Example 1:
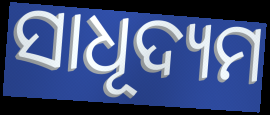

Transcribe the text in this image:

ସାଧୂଦ୍ୟମ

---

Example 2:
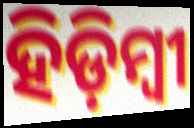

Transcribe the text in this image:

ହିଡ଼ିମ୍ବୀ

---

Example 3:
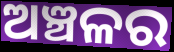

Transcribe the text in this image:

ଅଞ୍ଚଳର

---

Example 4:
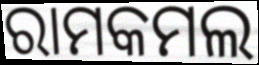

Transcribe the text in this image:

ରାମକମଲ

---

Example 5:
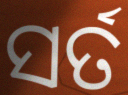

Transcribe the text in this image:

ସର୍ତ